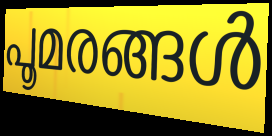
പൂമരങ്ങൾ